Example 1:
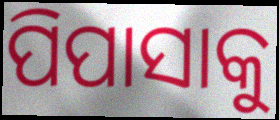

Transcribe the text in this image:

ପିପାସାକୁ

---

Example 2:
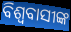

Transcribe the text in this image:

ବିଶ୍ଵବାସୀଙ୍କ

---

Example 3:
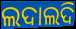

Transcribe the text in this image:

ଲଦାଲଦି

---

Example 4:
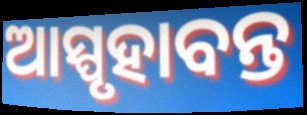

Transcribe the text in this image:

ଆସ୍ପୃହାବନ୍ତ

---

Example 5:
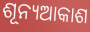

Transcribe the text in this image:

ଶୂନ୍ୟଆକାଶ